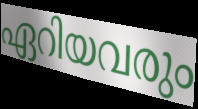
ഏറിയവരും